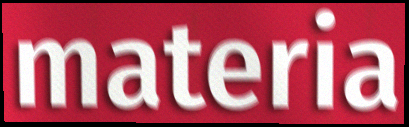
materia